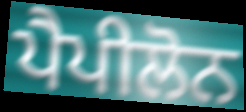
ਪੈਪੀਲੋਨ